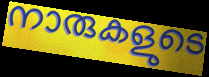
നാരുകളുടെ